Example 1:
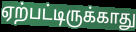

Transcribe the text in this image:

ஏற்பட்டிருக்காது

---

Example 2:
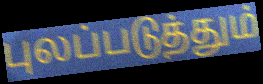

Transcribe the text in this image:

புலப்படுத்தும்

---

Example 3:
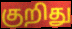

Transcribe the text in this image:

குறிது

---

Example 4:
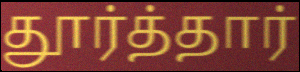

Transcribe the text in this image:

தூர்த்தார்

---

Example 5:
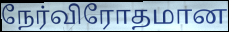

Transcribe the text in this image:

நேர்விரோதமான